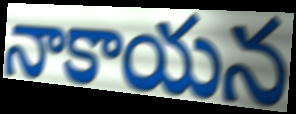
నాకాయన